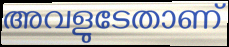
അവളുടേതാണ്